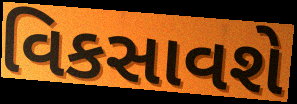
વિકસાવશે